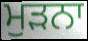
ਮੁਡ਼ਨਾ